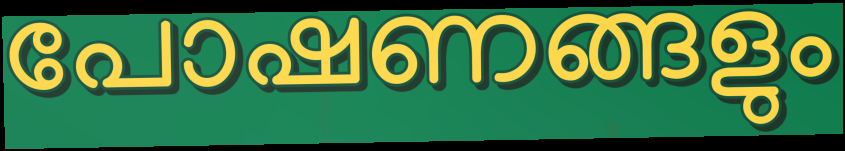
പോഷണങ്ങളും